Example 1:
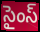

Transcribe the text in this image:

సైంస్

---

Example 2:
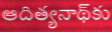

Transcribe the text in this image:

ఆదిత్యనాథ్‌కు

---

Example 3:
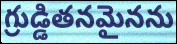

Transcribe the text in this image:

గ్రుడ్డితనమైనను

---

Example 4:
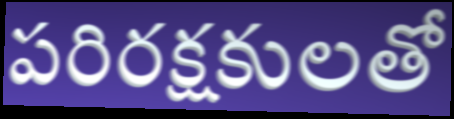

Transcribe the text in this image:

పరిరక్షకులతో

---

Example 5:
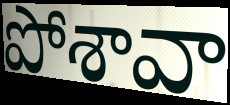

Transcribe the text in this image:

పోశావా